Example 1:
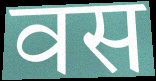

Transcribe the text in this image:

वस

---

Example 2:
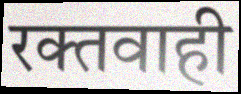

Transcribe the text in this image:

रक्तवाही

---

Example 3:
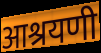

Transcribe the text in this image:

आश्रयणी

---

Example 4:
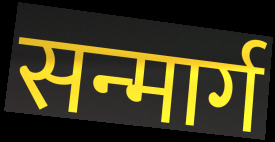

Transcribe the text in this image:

सन्‍मार्ग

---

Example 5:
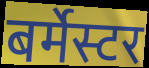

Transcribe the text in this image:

बर्मेस्टर